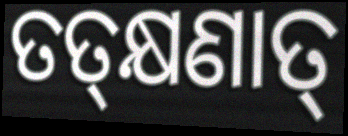
ତତ୍କ୍ଷଣାତ୍